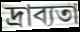
দ্রাব্যতা